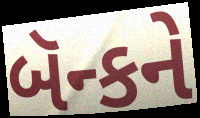
બૅન્કને